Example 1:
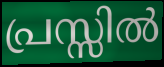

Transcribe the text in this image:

പ്രസ്സിൽ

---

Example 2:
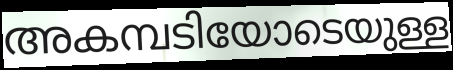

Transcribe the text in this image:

അകമ്പടിയോടെയുള്ള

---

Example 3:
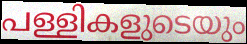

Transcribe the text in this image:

പള്ളികളുടെയും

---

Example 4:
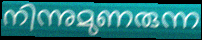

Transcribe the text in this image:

നിന്നുമുണരുന്ന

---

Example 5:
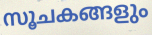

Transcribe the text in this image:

സൂചകങ്ങളും